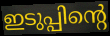
ഇടുപ്പിന്റെ